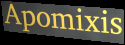
Apomixis